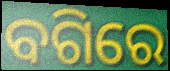
ବଗିରେ